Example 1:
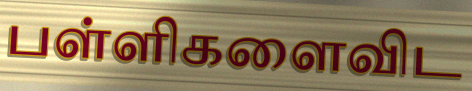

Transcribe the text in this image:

பள்ளிகளைவிட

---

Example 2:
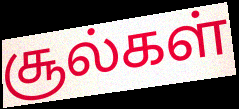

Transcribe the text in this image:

சூல்கள்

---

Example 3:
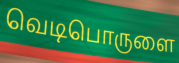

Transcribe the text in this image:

வெடிபொருளை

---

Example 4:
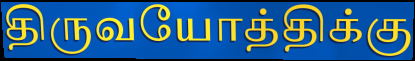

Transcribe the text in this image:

திருவயோத்திக்கு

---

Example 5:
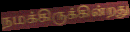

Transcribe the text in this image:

நமக்கிருக்கின்றது